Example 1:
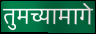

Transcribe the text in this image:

तुमच्यामागे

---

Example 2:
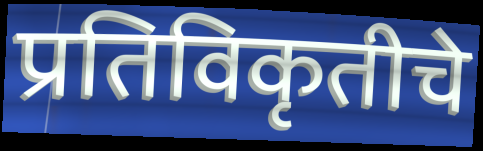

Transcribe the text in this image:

प्रतिविकृतीचे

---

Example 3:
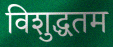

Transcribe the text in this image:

विशुद्धतम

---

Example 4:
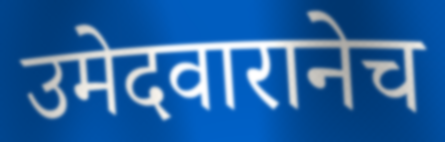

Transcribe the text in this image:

उमेदवारानेच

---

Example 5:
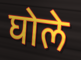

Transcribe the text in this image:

घोले